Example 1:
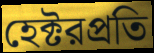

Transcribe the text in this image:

হেক্টরপ্রতি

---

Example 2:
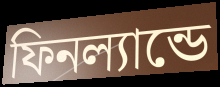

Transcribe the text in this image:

ফিনল্যান্ডে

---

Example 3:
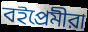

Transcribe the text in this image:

বইপ্রেমীরা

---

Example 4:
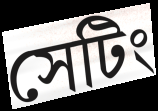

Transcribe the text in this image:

সেটিং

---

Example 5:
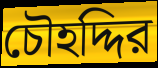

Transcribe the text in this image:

চৌহদ্দির